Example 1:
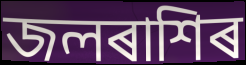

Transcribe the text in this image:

জলৰাশিৰ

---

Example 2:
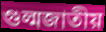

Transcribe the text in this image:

গুল্মজাতীয়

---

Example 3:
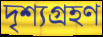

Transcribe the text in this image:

দৃশ্যগ্ৰহণ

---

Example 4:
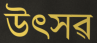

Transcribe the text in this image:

উৎসৱ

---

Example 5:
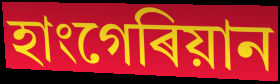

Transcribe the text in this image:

হাংগেৰিয়ান